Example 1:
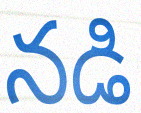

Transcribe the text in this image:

నడి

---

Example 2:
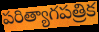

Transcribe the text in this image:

పరిత్యాగపత్రిక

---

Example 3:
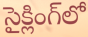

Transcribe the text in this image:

సైక్లింగ్‌లో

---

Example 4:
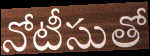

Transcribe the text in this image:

నోటీసుతో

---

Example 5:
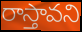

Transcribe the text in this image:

రాస్తావని